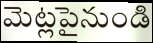
మెట్లపైనుండి